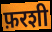
फ़रशी